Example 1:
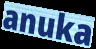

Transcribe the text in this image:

anuka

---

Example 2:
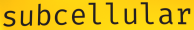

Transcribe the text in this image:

subcellular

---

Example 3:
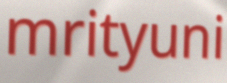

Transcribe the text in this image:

mrityuni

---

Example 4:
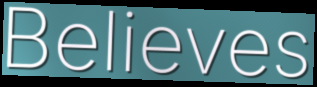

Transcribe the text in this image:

Believes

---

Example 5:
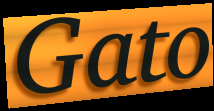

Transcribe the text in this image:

Gato